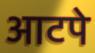
आटपे